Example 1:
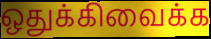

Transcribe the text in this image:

ஒதுக்கிவைக்க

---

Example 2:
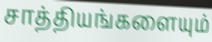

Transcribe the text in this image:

சாத்தியங்களையும்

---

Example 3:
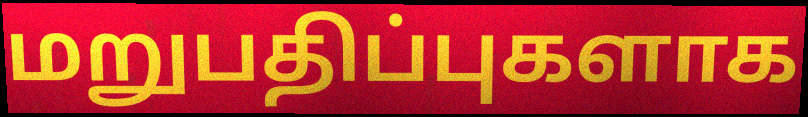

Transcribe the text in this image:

மறுபதிப்புகளாக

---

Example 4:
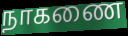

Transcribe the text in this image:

நாகணை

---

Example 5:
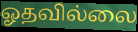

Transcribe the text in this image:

ஓதவில்லை